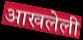
आखलेली